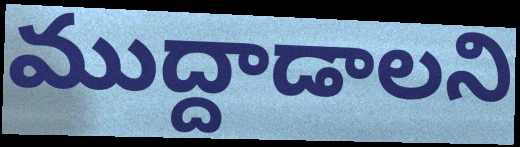
ముద్దాడాలని